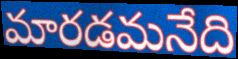
మారడమనేది